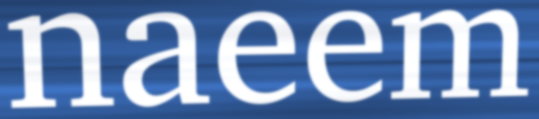
naeem